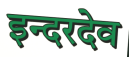
इन्दरदेव